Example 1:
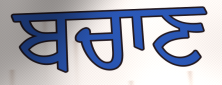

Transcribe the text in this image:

ਬਚਾਣ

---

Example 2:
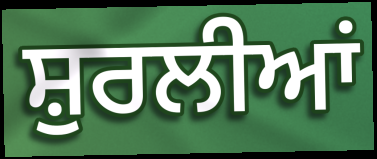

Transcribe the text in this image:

ਸ਼ੁਰਲੀਆਂ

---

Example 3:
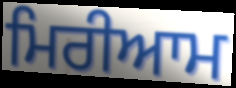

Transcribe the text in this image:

ਮਿਰੀਆਮ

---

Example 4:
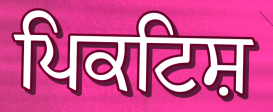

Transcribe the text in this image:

ਪਿਕਟਿਸ਼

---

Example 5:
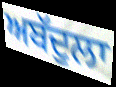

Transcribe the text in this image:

ਅਬੱਦੁਲਾ